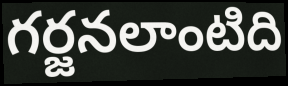
గర్జనలాంటిది